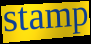
stamp